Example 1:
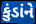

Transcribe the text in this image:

કુંડાંને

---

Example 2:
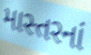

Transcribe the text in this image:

માસ્તરનાં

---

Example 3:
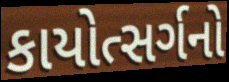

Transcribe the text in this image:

કાયોત્સર્ગનો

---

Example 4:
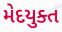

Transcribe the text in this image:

મેદયુક્ત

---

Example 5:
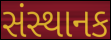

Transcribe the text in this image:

સંસ્થાનક